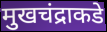
मुखचंद्राकडे